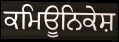
ਕਮਿਊਨਿਕੇਸ਼